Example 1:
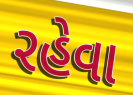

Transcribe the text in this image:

રહેવા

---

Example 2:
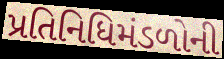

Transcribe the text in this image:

પ્રતિનિધિમંડળોની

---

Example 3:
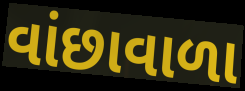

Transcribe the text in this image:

વાંછાવાળા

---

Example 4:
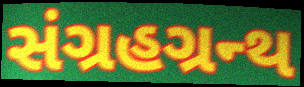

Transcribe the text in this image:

સંગ્રહગ્રન્થ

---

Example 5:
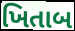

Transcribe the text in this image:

ખિતાબ